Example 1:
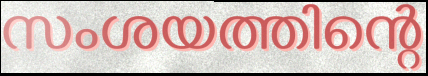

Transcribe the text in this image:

സംശയത്തിന്റെ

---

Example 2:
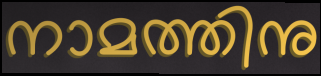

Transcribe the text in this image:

നാമത്തിനു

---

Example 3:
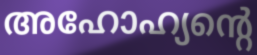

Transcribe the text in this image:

അഹോഹ്യന്റെ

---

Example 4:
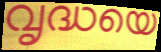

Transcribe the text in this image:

വൃദ്ധയെ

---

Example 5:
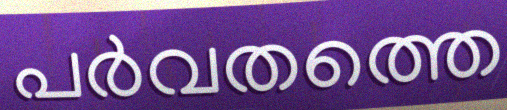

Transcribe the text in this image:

പർവതത്തെ